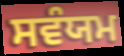
ਸਵੰਯਮ